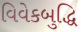
વિવેકબુદ્ધિ